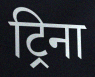
ट्रिना